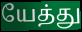
யேத்து